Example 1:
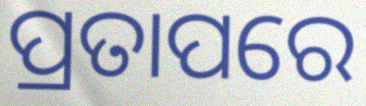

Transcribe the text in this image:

ପ୍ରତାପରେ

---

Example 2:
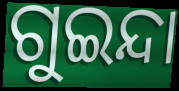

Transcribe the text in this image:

ଗୁଇନ୍ଦା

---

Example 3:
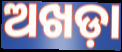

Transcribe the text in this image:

ଅଖଡ଼ା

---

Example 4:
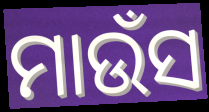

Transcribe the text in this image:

ମାଉଁସ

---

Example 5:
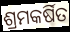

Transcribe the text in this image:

ଶ୍ରମକର୍ଷିତ